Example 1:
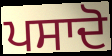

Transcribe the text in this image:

ਪਸਾਦੋ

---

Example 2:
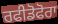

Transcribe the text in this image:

ਰਫੀਡੋਫੋਰਾ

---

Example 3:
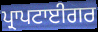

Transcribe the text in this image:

ਪ੍ਰਾਪਟਾਈਗਰ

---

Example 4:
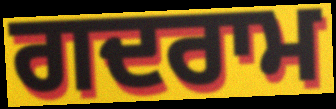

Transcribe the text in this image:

ਗਦਰਾਮ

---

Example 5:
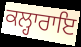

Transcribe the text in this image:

ਕਲ੍ਹਾਰਾਇ